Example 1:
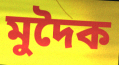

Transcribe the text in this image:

মুদৈক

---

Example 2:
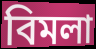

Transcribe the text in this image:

বিমলা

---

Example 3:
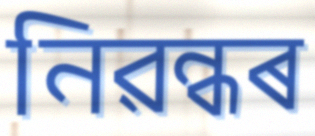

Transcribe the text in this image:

নিৱন্ধৰ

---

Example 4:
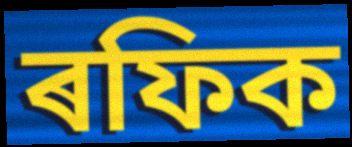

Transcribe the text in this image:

ৰফিক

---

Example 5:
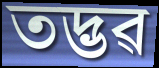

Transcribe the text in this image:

তদ্ভৱ